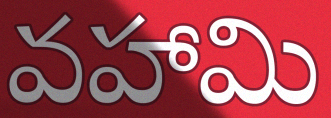
వహామి